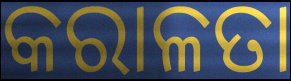
କରାଳତା